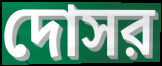
দোসর